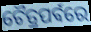
ଚୈତ୍ରପର୍ବରେ